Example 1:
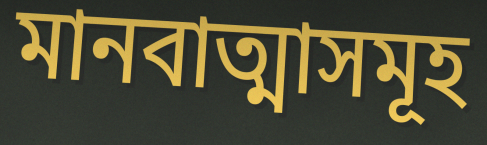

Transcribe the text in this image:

মানবাত্মাসমূহ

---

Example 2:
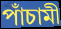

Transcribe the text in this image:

পাঁচামী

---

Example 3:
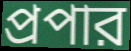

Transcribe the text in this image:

প্রপার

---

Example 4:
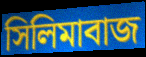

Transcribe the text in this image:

সিলিমাবাজ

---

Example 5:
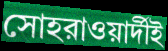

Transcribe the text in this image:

সোহরাওয়ার্দীই